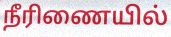
நீரிணையில்